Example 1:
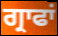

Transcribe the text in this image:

ਗ੍ਰਾਫਾਂ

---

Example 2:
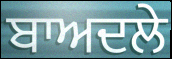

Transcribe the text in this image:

ਬਾਅਦਲੇ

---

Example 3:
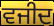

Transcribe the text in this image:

ਵਜੀਦ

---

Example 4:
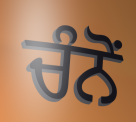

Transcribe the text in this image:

ਚੰਨੋਂ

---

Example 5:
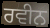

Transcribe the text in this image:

ਰਵੀਨ